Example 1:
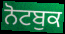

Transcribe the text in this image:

ਨੋਟਬੁਕ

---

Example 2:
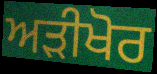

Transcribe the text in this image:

ਅੜੀਖੋਰ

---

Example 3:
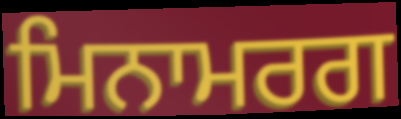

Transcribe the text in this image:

ਮਿਨਾਮਰਗ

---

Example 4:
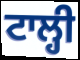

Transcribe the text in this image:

ਟਾਲ੍ਹੀ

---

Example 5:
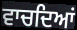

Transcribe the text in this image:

ਵਾਚਦਿਆਂ